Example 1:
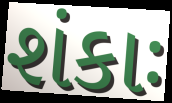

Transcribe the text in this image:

શંકાઃ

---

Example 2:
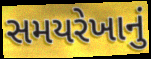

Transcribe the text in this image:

સમયરેખાનું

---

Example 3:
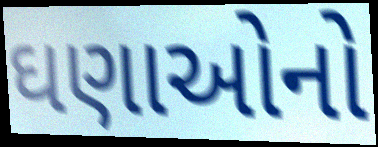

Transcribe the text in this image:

ઘણાઓનો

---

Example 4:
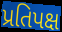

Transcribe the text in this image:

પ્રતિપક્ષ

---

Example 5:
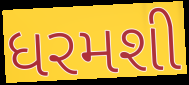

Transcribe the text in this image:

ધરમશી